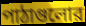
পাঠাগুলোর